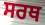
ਸਰਥ